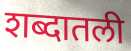
शब्दातली